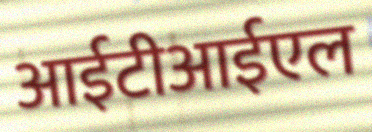
आईटीआईएल